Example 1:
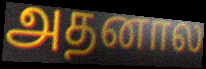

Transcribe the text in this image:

அதனால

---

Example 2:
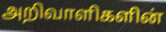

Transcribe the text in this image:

அறிவாளிகளின்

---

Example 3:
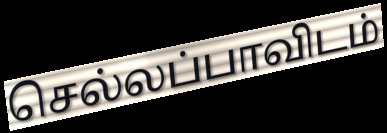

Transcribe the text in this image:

செல்லப்பாவிடம்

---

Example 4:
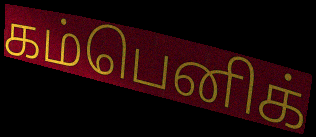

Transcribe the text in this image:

கம்பெனிக்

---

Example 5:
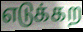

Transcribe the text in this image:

எடுக்கற